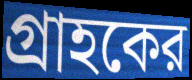
গ্রাহকের